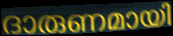
ദാരുണമായി